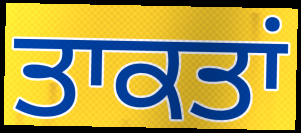
ਤਾਕਤਾਂ